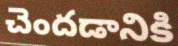
చెందడానికి